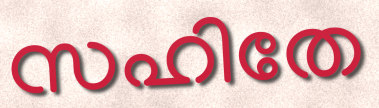
സഹിതേ